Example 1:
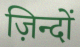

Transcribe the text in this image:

ज़िन्दों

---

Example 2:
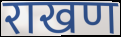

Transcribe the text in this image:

राखण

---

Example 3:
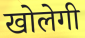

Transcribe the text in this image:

खोलेगी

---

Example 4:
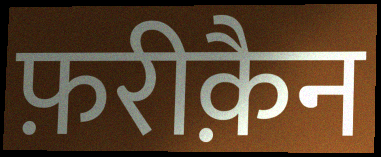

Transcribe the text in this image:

फ़रीक़ैन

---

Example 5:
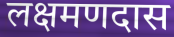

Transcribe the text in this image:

लक्षमणदास